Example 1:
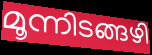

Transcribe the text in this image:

മൂന്നിടങ്ങഴി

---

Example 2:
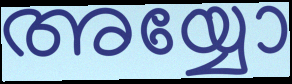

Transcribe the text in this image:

അയ്യോ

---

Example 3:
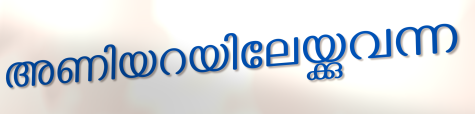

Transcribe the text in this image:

അണിയറയിലേയ്ക്കുവന്ന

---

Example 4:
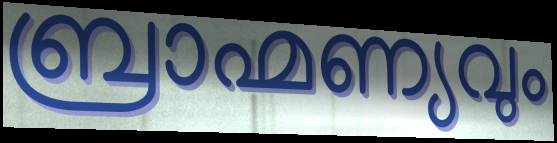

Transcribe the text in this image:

ബ്രാഹ്മണ്യവും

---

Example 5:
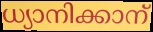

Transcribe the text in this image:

ധ്യാനിക്കാന്